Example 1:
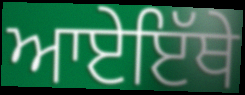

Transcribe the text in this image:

ਆਏਇੱਥੇ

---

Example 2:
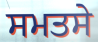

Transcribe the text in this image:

ਸਮਤਸੇ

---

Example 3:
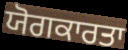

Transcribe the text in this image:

ਯੋਗਕਾਰਤਾ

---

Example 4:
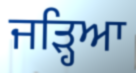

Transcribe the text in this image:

ਜੜ੍ਹਿਆ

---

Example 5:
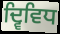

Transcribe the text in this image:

ਦ੍ਵਿਵਿਧ